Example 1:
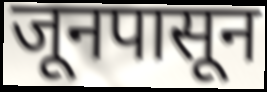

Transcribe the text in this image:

जूनपासून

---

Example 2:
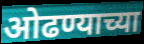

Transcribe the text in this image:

ओढण्याच्या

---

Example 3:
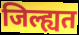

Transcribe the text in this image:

जिल्ह्यत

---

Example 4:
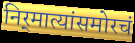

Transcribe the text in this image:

निर्मात्यांसमोरचं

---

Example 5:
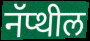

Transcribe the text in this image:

नॅप्थील